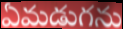
ఏమడుగను